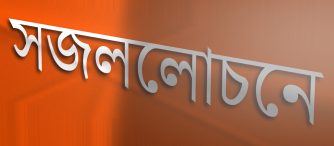
সজললোচনে